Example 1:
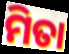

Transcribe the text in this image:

ମିତା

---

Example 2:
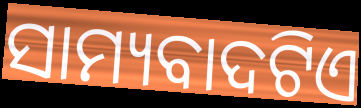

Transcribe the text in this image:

ସାମ୍ୟବାଦଟିଏ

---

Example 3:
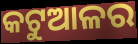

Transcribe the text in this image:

କଟୁଆଳର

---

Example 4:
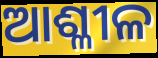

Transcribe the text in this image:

ଆଶ୍ଳୀଳ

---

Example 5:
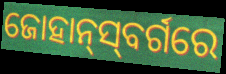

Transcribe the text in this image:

ଜୋହାନ୍‌ସ୍‌ବର୍ଗରେ